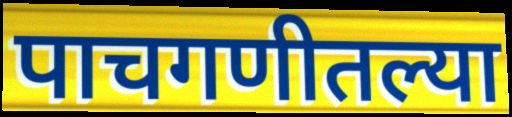
पाचगणीतल्या